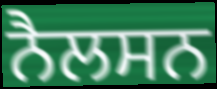
ਨੈਲਸਨ